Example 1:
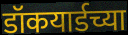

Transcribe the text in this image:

डॉकयार्डच्या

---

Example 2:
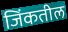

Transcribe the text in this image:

जिंकतील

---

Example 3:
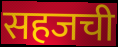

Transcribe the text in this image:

सहजची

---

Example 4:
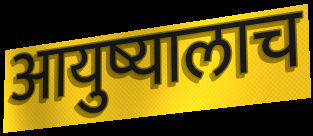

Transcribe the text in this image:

आयुष्यालाच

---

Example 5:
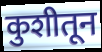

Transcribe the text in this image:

कुशीतून